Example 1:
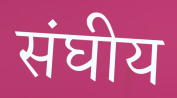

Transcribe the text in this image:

संघीय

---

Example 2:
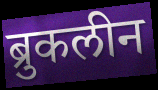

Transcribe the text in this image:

ब्रुकलीन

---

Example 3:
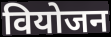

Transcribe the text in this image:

वियोजन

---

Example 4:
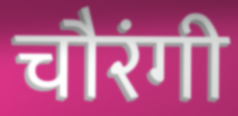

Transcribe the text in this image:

चौरंगी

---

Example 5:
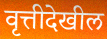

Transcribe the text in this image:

वृत्तीदेखील